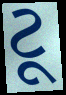
ટૂ